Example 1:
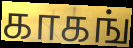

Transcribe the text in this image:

காகங்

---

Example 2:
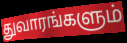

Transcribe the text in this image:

துவாரங்களும்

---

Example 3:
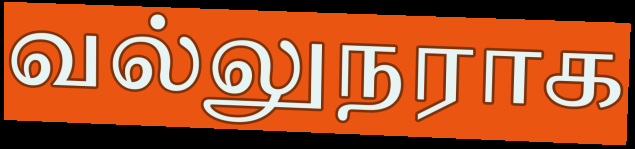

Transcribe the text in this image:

வல்லுநராக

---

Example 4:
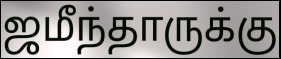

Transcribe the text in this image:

ஜமீந்தாருக்கு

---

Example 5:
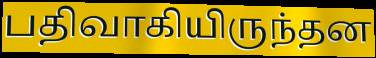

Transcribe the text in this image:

பதிவாகியிருந்தன